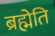
ब्रह्मेति